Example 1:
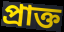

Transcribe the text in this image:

প্রাক্ত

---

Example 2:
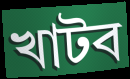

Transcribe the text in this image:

খাটব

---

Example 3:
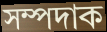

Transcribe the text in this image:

সম্পদাক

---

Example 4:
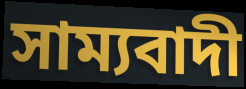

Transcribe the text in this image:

সাম্যবাদী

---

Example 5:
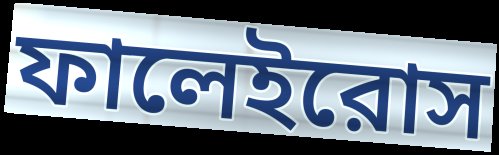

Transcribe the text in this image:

ফালেইরোস